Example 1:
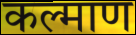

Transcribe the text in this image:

कल्माण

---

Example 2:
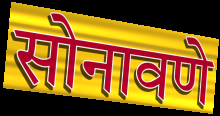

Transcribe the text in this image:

सोनावणे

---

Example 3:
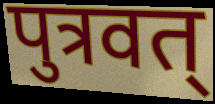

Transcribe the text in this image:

पुत्रवत्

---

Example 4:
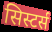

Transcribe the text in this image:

सिस्टर्स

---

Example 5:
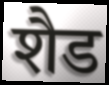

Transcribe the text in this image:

शैड